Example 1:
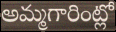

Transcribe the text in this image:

అమ్మగారింట్లో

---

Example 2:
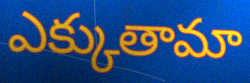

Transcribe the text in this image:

ఎక్కుతామా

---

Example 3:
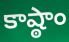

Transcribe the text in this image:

కాష్ఠాం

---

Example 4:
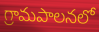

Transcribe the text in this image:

గ్రామపాలనలో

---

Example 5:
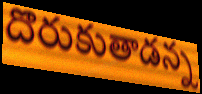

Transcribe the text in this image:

దొరుకుతాడన్న